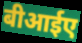
बीआईए